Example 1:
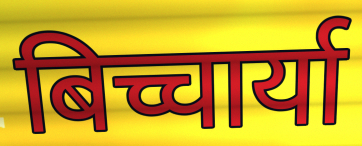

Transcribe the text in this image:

बिच्चार्या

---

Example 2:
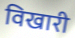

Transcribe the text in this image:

विखारी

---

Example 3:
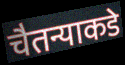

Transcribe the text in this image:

चैतन्याकडे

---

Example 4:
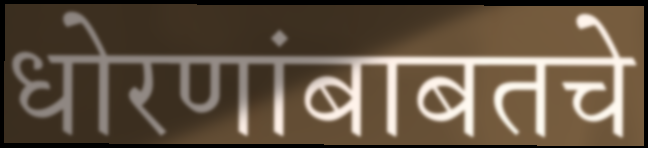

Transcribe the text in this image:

धोरणांबाबतचे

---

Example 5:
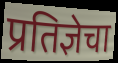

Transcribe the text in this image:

प्रतिज्ञेचा